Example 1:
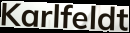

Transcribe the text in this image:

Karlfeldt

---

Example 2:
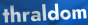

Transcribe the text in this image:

thraldom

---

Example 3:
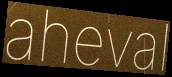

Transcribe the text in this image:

aheval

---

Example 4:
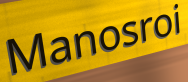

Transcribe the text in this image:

Manosroi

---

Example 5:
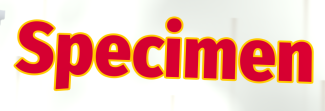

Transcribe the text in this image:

Specimen